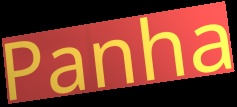
Panha